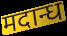
मदान्ध